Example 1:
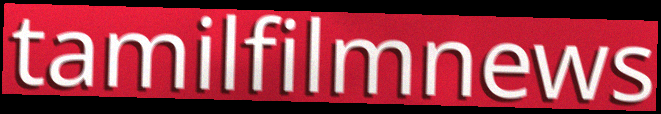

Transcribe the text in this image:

tamilfilmnews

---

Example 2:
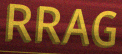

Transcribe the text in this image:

RRAG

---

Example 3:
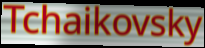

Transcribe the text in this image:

Tchaikovsky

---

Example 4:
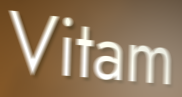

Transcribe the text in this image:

Vitam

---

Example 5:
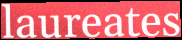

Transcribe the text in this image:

laureates